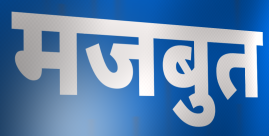
मजबुत